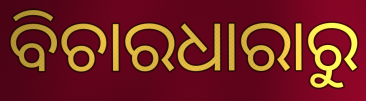
ବିଚାରଧାରାରୁ